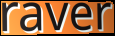
raver